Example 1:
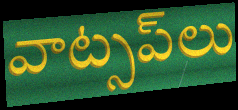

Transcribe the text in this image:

వాట్సప్‌లు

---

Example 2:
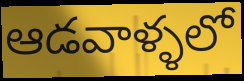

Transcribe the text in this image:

ఆడవాళ్ళలో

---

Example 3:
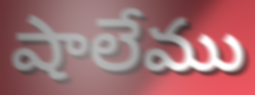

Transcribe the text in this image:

షాలేము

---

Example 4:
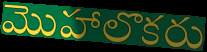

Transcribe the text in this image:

మొహాలొకరు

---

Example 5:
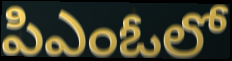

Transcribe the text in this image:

పిఎంఓలో